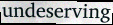
undeserving